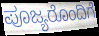
ಪೂಜ್ಯರೊಂದಿಗೆ